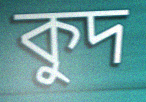
কুদ